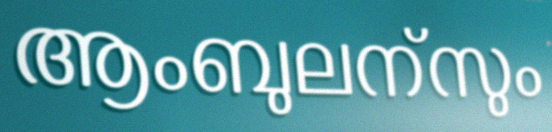
ആംബുലന്സും